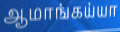
ஆமாங்கய்யா